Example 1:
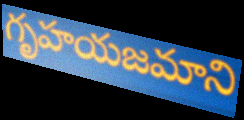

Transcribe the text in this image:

గృహయజమాని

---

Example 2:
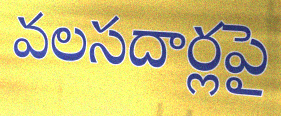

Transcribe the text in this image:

వలసదార్లపై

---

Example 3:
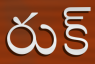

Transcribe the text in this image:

రుక్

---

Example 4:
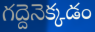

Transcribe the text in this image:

గద్దెనెక్కడం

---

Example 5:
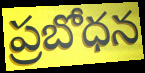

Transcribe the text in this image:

ప్రబోధన